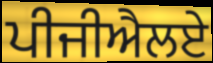
ਪੀਜੀਐਲਏ